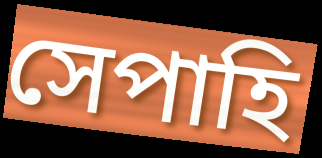
সেপাহি